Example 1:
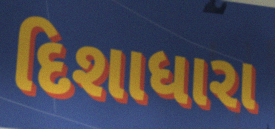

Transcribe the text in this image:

દિશાધારા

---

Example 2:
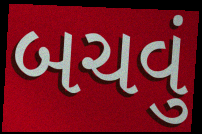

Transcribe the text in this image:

બચવું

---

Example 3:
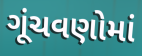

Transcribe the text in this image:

ગૂંચવણોમાં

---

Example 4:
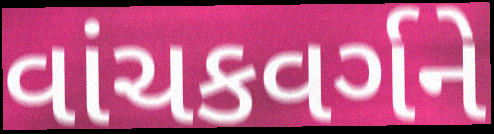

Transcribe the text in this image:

વાંચકવર્ગને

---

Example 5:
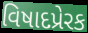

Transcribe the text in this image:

વિષાદપ્રેરક